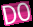
DO